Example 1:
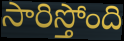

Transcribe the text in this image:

సారిస్తోంది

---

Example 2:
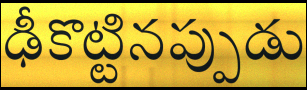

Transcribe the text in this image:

ఢీకొట్టినప్పుడు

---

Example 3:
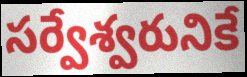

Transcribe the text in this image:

సర్వేశ్వరునికే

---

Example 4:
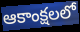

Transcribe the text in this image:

ఆకాంక్షలలో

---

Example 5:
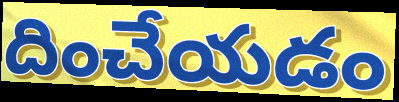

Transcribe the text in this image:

దించేయడం